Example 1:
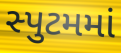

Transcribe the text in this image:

સ્પુટમમાં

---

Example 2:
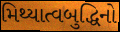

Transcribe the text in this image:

મિથ્યાત્વબુદ્ધિનો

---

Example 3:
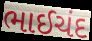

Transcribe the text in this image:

ભાઈચંદ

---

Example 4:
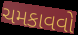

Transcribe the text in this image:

ચમકાવવો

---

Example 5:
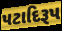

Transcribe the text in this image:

પટાદિરૂપ